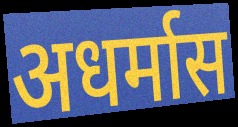
अधर्मास